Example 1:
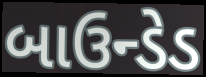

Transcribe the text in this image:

બાઉન્ડેડ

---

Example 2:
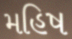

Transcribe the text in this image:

મહિષ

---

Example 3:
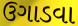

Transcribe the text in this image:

ઉગાડવા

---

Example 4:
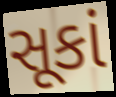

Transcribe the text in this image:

સૂકાં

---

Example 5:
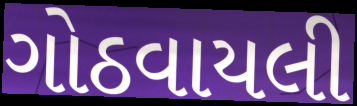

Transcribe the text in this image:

ગોઠવાયલી